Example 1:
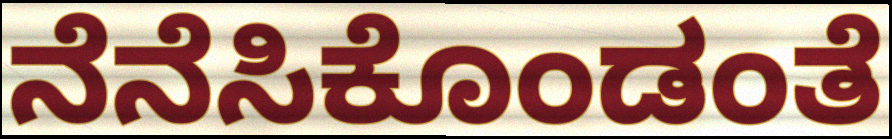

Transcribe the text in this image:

ನೆನೆಸಿಕೊಂಡಂತೆ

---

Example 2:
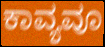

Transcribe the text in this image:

ಕಾವ್ಯವೂ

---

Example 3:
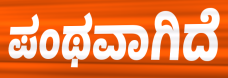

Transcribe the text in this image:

ಪಂಥವಾಗಿದೆ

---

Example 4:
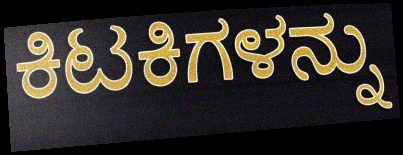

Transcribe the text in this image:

ಕಿಟಕಿಗಳನ್ನು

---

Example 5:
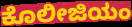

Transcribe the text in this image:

ಕೊಲೀಜಿಯಂ